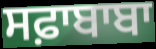
ਸਫ਼ਾਬਾਬਾ